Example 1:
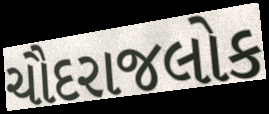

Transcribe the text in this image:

ચૌદરાજલોક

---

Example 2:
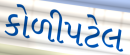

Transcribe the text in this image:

કોળીપટેલ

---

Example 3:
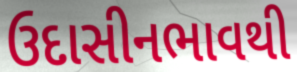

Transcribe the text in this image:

ઉદાસીનભાવથી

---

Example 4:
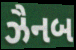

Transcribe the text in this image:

ઝૈનબ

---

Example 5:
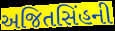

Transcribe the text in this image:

અજિતસિંહની